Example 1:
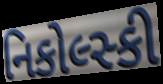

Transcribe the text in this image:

નિકોલ્સ્કી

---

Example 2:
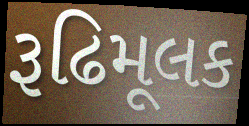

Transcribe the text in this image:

રૂઢિમૂલક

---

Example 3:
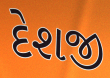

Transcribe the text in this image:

દેશજી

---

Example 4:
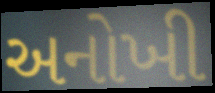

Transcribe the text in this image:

અનોખી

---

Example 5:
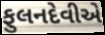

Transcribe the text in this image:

ફુલનદેવીએ